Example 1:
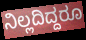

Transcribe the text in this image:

ನಿಲ್ಲದಿದ್ದರೂ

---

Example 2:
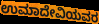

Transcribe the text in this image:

ಉಮಾದೇವಿಯವರ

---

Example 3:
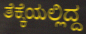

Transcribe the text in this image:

ತೆಕ್ಕೆಯಲ್ಲಿದ್ದ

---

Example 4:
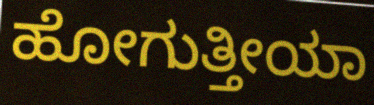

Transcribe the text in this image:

ಹೋಗುತ್ತೀಯಾ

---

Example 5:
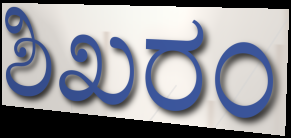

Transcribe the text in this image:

ಶಿಖರಂ